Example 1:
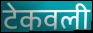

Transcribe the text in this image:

टेकवली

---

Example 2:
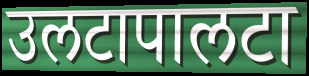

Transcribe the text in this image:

उलटापालटा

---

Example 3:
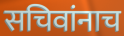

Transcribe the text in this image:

सचिवांनाच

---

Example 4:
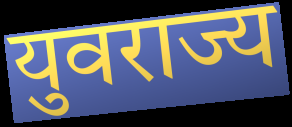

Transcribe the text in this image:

युवराज्य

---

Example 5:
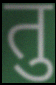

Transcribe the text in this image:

तु